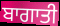
ਬਾਗਾਤੀ